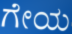
ಗೇಯ